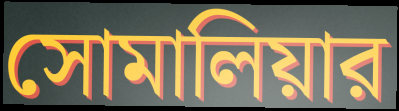
সোমালিয়ার